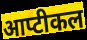
आप्टीकल